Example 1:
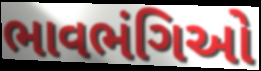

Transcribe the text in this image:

ભાવભંગિઓ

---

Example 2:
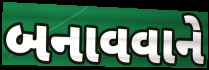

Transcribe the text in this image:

બનાવવાને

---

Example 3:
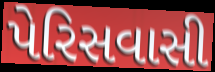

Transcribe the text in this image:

પેરિસવાસી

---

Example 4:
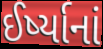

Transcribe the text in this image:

ઈર્ષ્યાનાં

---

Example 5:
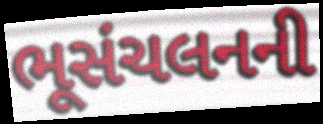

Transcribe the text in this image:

ભૂસંચલનની